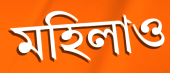
মহিলাও